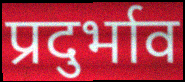
प्रदुर्भाव